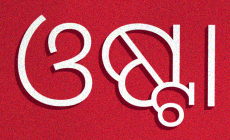
ଓଷ୍ଟା